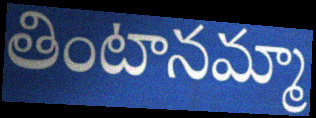
తింటానమ్మా